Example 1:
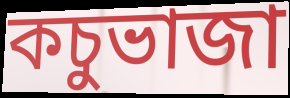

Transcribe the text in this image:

কচুভাজা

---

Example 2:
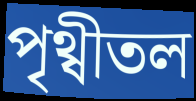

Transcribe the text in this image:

পৃথ্বীতল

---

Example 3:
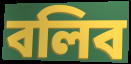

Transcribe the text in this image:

বলিব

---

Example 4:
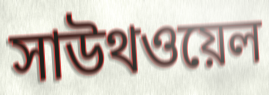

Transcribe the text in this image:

সাউথওয়েল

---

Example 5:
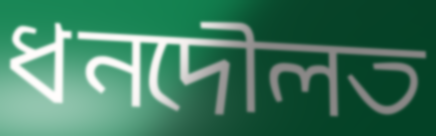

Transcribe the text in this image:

ধনদৌলত